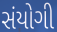
સંયોગી